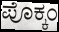
ಪೊಕ್ಕಂ